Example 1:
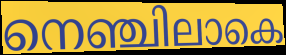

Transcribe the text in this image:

നെഞ്ചിലാകെ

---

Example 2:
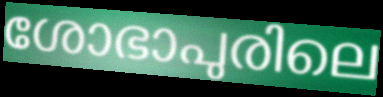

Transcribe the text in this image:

ശോഭാപുരിലെ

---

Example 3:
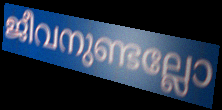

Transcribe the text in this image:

ജീവനുണ്ടല്ലോ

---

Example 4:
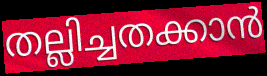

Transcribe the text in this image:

തല്ലിച്ചതക്കാൻ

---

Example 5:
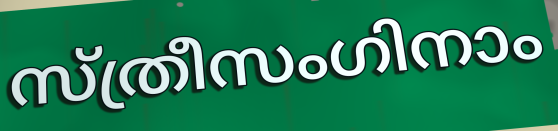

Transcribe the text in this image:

സ്ത്രീസംഗിനാം